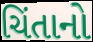
ચિંતાનો